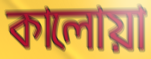
কালোয়া